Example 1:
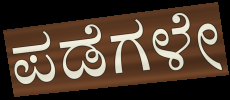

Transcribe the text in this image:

ಪಡೆಗಳೇ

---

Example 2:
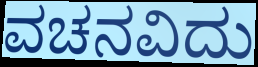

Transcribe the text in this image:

ವಚನವಿದು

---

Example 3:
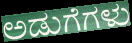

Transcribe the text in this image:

ಅಡುಗೆಗಳು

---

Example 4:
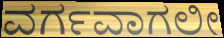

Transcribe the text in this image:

ವರ್ಗವಾಗಲೀ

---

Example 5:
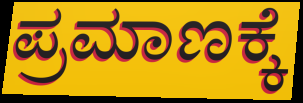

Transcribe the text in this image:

ಪ್ರಮಾಣಕ್ಕೆ